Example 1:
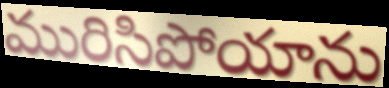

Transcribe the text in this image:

మురిసిపోయాను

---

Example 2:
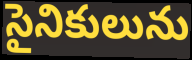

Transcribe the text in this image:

సైనికులును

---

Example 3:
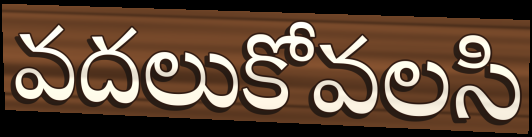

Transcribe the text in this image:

వదలుకోవలసి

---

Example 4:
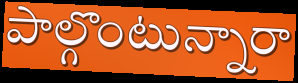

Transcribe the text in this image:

పాల్గొంటున్నారా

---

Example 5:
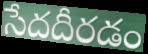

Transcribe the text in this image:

సేదదీరడం